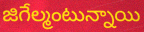
జిగేల్మంటున్నాయి